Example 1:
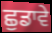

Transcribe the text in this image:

ਛੁਡਾਵੇ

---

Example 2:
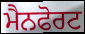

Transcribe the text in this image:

ਮੈਨਫੋਰਟ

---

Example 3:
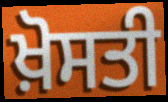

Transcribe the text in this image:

ਖ਼ੋਸਤੀ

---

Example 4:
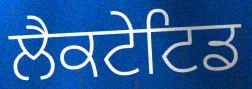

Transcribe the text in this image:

ਲੈਕਟੇਟਿਡ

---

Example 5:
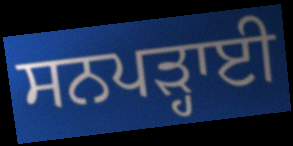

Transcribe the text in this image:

ਸਨਪੜ੍ਹਾਈ